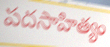
పదసాహిత్యం